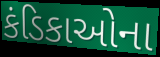
કંડિકાઓના